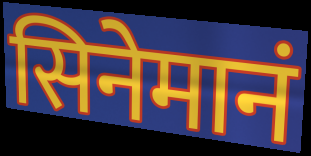
सिनेमानं